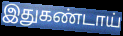
இதுகண்டாய்